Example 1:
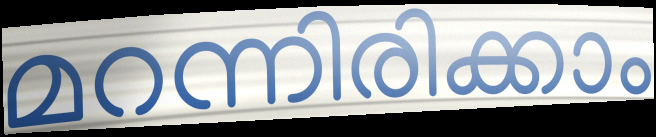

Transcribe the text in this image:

മറന്നിരിക്കാം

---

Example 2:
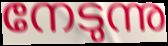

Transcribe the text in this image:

നേടുന്നു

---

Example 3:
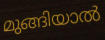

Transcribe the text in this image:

മുങ്ങിയാൽ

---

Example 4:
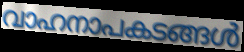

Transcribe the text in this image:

വാഹനാപകടങ്ങൾ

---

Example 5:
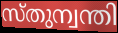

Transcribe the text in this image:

സ്തുന്വന്തി